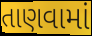
તાણવામાં